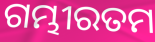
ଗମ୍ଭୀରତମ